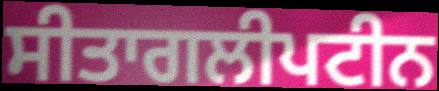
ਸੀਤਾਗਲੀਪਟੀਨ